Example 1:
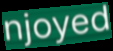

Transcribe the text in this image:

njoyed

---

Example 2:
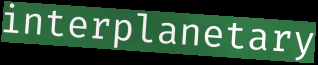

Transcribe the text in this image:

interplanetary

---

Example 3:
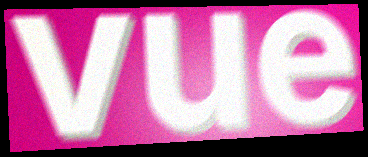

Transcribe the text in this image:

vue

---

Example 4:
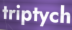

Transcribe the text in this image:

triptych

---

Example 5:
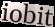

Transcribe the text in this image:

iobit